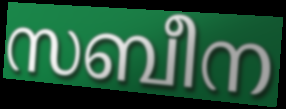
സബീന